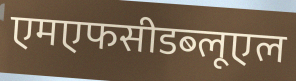
एमएफसीडब्‍लूएल